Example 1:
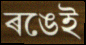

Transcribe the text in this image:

ৰঙেই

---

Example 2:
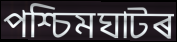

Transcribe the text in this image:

পশ্চিমঘাটৰ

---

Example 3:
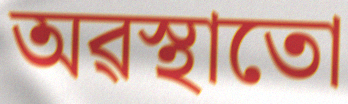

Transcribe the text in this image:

অৱস্থাতো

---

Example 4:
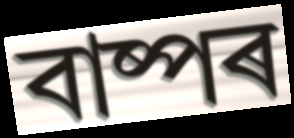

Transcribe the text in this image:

বাষ্পৰ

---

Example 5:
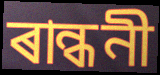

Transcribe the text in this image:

ৰান্ধনী